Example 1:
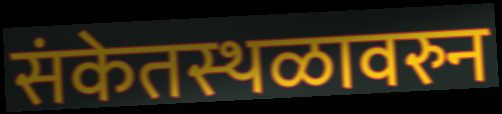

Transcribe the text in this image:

संकेतस्थळावरुन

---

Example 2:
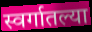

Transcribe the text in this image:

स्वर्गातल्या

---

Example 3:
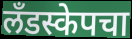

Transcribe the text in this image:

लँडस्केपचा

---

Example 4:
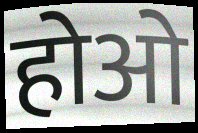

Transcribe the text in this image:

होओ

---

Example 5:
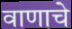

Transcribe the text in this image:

वाणाचे